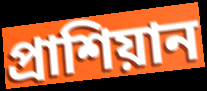
প্রাশিয়ান